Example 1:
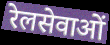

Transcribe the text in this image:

रेलसेवाओं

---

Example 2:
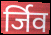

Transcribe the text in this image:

र्जिव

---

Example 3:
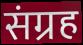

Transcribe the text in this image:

संग्रह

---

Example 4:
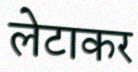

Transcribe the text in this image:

लेटाकर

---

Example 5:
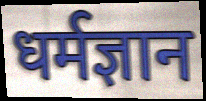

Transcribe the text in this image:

धर्मज्ञान